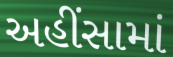
અહીંસામાં